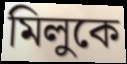
মিলুকে